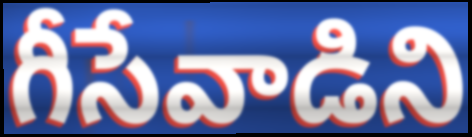
గీసేవాడిని